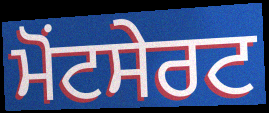
ਮੋਂਟਸੇਰਟ